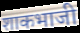
शाकभाजी